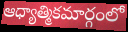
ఆధ్యాత్మికమార్గంలో